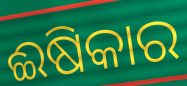
ଈଷିକାର